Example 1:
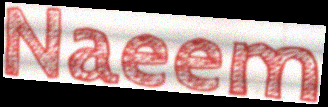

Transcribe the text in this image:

Naeem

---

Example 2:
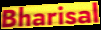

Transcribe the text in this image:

Bharisal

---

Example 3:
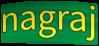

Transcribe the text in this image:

nagraj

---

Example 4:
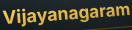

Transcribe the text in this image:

Vijayanagaram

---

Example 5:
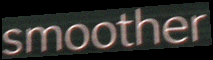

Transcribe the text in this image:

smoother